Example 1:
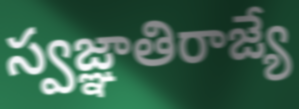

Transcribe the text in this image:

స్వజ్ఞాతిరాజ్యే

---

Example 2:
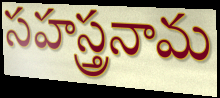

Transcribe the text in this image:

సహస్త్రనామ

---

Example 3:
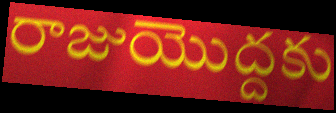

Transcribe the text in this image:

రాజుయొద్దకు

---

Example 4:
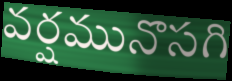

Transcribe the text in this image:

వర్షమునొసగి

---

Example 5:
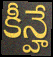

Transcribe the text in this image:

కీన్హే